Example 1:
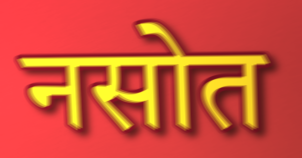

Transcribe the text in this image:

नसोत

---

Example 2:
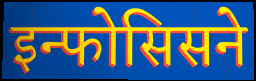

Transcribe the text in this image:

इन्फोसिसने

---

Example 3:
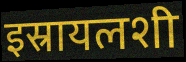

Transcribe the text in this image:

इस्रायलशी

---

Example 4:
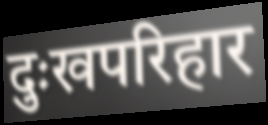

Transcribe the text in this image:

दुःखपरिहार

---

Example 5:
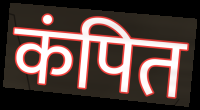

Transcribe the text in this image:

कंपित